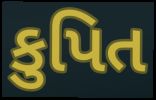
કુપિત